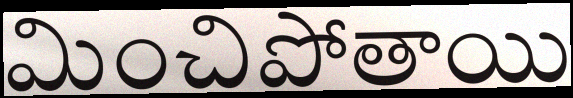
మించిపోతాయి